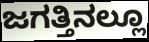
ಜಗತ್ತಿನಲ್ಲೂ